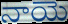
నాయె